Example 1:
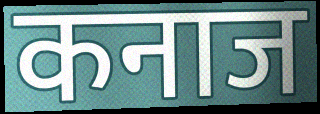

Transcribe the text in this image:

कनाज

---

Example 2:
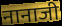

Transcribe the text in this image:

नानाजी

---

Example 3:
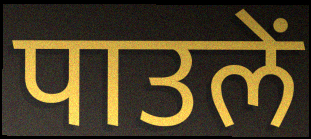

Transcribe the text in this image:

पाउलें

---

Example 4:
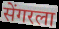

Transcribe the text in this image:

सेंगरला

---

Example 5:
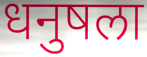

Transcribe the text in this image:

धनुषला